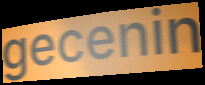
gecenin